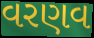
વરણવ